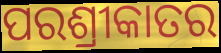
ପରଶ୍ରୀକାତର